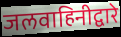
जलवाहिनीद्वारे